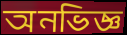
অনভিজ্ঞ